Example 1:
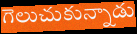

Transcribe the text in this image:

గెలుచుకున్నాడు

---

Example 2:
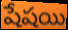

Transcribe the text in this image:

షేషయి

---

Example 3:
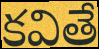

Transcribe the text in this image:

కవితే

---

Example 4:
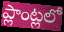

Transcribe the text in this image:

ప్లాంట్లలో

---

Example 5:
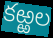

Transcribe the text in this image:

కఱ్ఱల